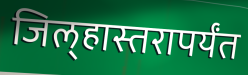
जिल्हास्तरापर्यंत